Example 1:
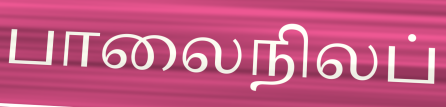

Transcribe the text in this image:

பாலைநிலப்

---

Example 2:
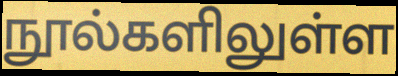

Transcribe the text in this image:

நூல்களிலுள்ள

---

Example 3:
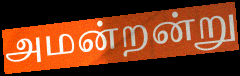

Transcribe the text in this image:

அமன்றன்று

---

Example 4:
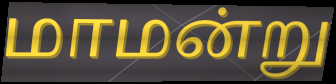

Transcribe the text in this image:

மாமன்று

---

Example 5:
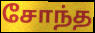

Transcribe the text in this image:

சோந்த